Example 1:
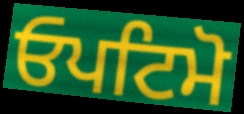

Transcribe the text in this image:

ਓਪਟਿਮੋ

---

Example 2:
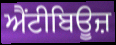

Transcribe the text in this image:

ਐਂਟੀਬਿਊਜ਼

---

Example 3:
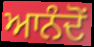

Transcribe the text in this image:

ਆਨੰਦੋਂ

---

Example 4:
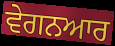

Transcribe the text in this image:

ਵੇਗਨਆਰ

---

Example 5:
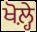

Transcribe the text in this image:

ਖੋਲ਼੍ਹੇ